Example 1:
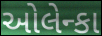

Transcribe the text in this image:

ઓલેન્કા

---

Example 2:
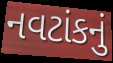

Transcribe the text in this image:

નવટાંકનું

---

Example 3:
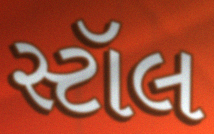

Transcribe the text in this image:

સ્ટૉલ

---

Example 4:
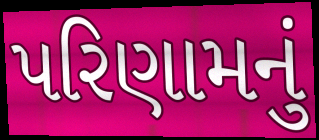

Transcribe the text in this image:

પરિણામનું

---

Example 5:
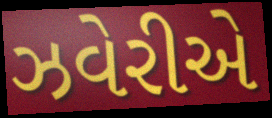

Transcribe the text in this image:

ઝવેરીએ